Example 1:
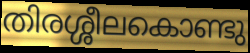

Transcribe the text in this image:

തിരശ്ശീലകൊണ്ടു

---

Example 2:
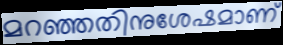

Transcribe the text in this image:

മറഞ്ഞതിനുശേഷമാണ്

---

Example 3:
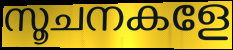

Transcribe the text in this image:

സൂചനകളേ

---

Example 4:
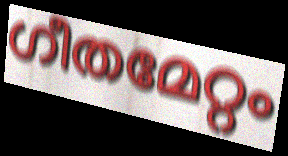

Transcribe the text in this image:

ഗീതമേറ്റം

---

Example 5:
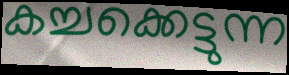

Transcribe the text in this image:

കച്ചക്കെട്ടുന്ന